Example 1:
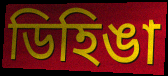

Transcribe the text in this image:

ডিহিঙা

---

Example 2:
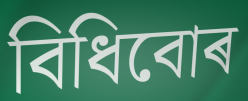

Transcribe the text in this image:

বিধিবোৰ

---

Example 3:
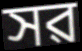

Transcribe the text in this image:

সৱ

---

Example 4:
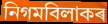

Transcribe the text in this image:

নিগমবিলাকৰ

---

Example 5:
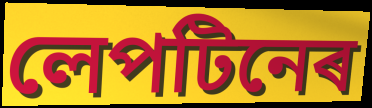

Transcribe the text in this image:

লেপটিনেৰ